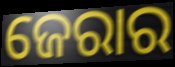
ଜେରାର